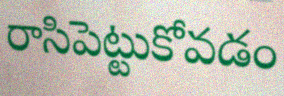
రాసిపెట్టుకోవడం